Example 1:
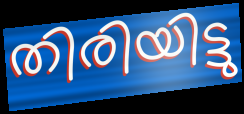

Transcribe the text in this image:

തിരിയിട്ടു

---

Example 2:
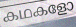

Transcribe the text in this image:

കഥകളോ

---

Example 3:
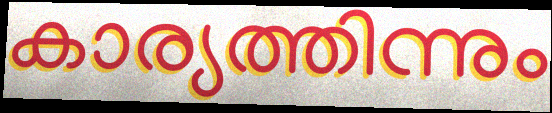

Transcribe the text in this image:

കാര്യത്തിന്നും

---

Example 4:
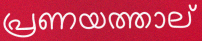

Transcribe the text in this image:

പ്രണയത്താല്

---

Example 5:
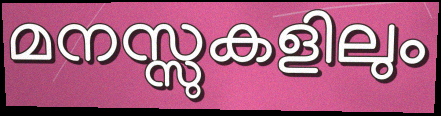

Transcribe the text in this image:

മനസ്സുകളിലും